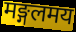
मङ्गलमय